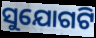
ସୁଯୋଗଟି